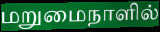
மறுமைநாளில்